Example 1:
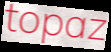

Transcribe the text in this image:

topaz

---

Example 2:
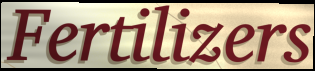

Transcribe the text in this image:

Fertilizers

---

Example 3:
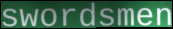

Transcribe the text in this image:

swordsmen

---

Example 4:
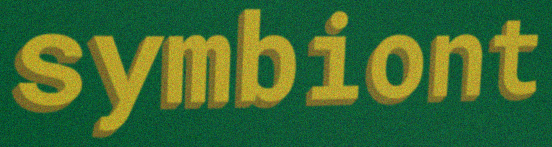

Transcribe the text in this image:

symbiont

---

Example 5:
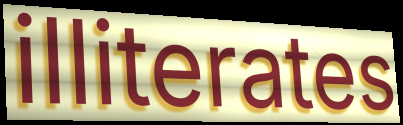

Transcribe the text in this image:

illiterates